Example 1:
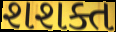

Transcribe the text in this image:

શશક્ત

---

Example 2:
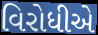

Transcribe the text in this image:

વિરોધીએ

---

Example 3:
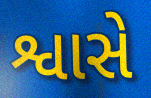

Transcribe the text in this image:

શ્વાસે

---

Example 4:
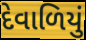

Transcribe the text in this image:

દેવાળિયું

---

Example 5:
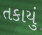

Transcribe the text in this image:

તકાયું